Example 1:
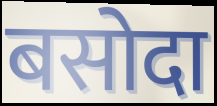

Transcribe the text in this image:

बसोदा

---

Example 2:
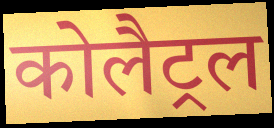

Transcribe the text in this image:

कोलैट्रल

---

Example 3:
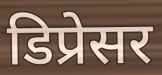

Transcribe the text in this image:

डिप्रेसर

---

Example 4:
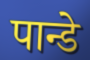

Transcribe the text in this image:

पान्डे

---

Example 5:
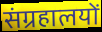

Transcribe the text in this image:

संग्रहालयों